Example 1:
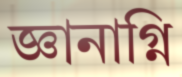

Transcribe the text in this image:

জ্ঞানাগ্নি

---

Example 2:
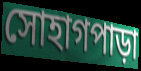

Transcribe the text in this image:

সোহাগপাড়া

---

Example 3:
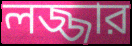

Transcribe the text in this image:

লজ্জার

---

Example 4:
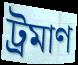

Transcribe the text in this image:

ট্রমাণ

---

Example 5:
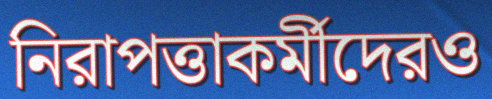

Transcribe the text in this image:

নিরাপত্তাকর্মীদেরও